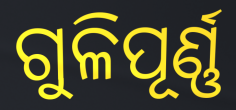
ଗୁଳିପୂର୍ଣ୍ଣ